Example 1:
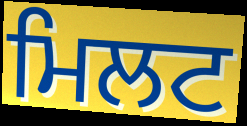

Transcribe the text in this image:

ਮਿਲਟ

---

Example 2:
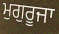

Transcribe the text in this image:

ਮੁਗੁਰੂਜਾ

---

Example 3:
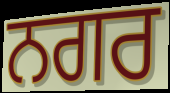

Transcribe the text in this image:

ਨਗਰ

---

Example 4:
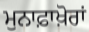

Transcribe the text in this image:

ਮੁਨਾਫ਼ਾਖ਼ੋਰਾਂ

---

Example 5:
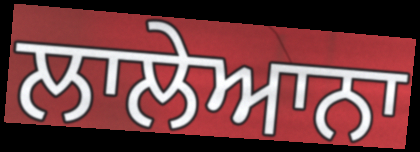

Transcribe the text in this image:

ਲਾਲੇਆਨਾ